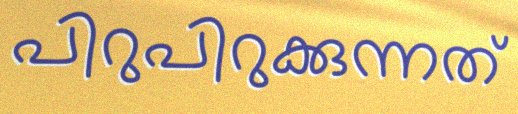
പിറുപിറുക്കുന്നത്